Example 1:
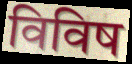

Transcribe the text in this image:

विविष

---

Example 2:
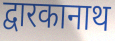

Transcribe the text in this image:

द्वारकानाथ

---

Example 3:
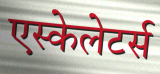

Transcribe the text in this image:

एस्केलेटर्स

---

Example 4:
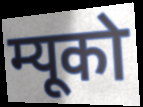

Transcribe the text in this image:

म्यूको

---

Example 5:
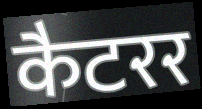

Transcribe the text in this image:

कैटरर